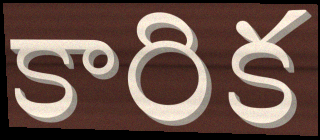
కారిక